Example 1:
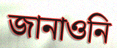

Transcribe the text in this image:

জানাওনি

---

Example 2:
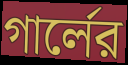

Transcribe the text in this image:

গার্লের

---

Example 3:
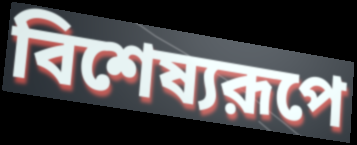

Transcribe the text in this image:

বিশেষ্যরূপে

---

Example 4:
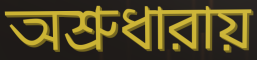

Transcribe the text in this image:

অশ্রুধারায়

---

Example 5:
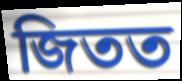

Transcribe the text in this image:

জিতত